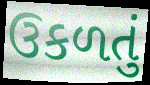
ઉકળતું